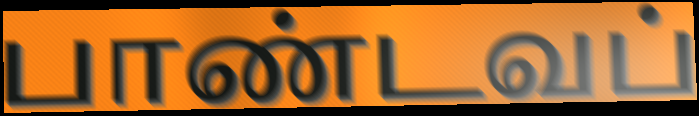
பாண்டவப்